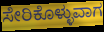
ಸೇರಿಕೊಳ್ಳುವಾಗ